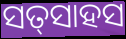
ସତ୍‌ସାହସ